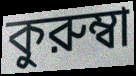
কুৰুম্বা